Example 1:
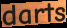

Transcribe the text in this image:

darts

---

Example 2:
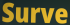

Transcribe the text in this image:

Surve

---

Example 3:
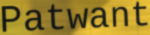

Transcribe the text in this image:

Patwant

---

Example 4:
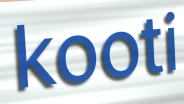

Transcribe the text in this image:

kooti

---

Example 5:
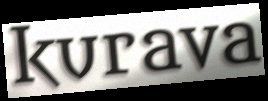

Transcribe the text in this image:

kurava